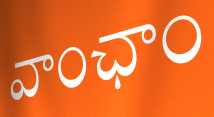
వాంఛాం